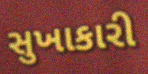
સુખાકારી